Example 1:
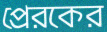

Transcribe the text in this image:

প্রেরকের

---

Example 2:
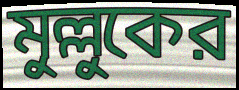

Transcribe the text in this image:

মুল্লুকের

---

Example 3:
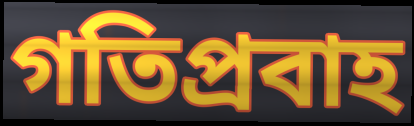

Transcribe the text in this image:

গতিপ্রবাহ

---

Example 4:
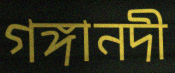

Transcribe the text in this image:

গঙ্গানদী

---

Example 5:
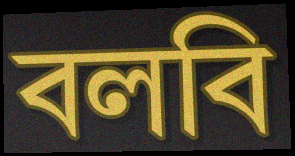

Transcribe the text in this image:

বলবি